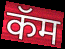
कॅम